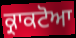
ਕ੍ਰਾਕਟੋਆ